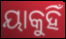
ୟାକୁହିଁ